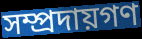
সম্প্রদায়গণ